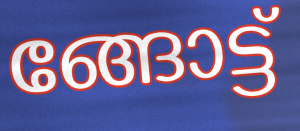
ങ്ങോട്ട്